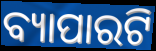
ବ୍ୟାପାରଟି